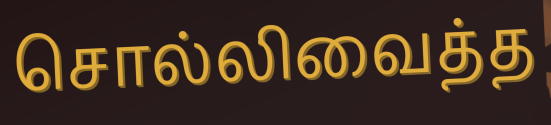
சொல்லிவைத்த